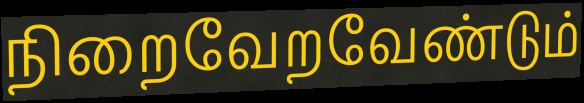
நிறைவேறவேண்டும்